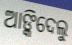
ଆଙ୍କିଦେଲୁ